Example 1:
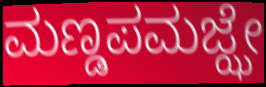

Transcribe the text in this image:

ಮಣ್ಡಪಮಜ್ಝೇ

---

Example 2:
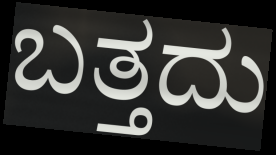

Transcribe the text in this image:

ಬತ್ತದು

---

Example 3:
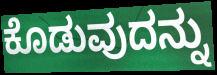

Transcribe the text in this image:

ಕೊಡುವುದನ್ನು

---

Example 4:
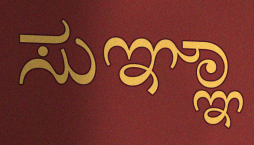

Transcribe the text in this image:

ಸುಞ್ಞಾ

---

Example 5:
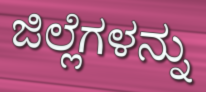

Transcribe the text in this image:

ಜಿಲ್ಲೆಗಳನ್ನು